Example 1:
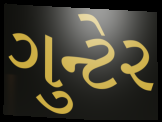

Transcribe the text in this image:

ગુન્ટેર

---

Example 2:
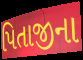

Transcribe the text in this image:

પિતાજીના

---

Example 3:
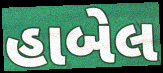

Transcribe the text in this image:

હાબેલ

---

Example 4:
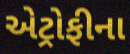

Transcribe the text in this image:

એટ્રોફીના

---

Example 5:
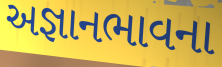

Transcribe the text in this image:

અજ્ઞાનભાવના